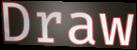
Draw